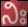
ನಿಃ